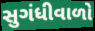
સુગંધીવાળો